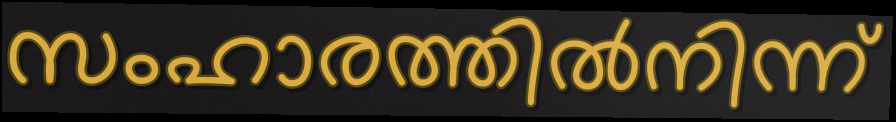
സംഹാരത്തിൽനിന്ന്